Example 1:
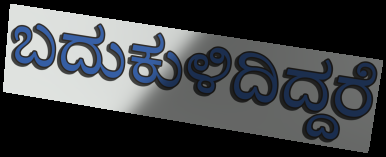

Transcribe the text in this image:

ಬದುಕುಳಿದಿದ್ದರೆ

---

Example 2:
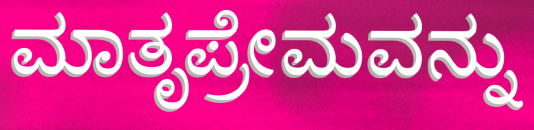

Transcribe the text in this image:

ಮಾತೃಪ್ರೇಮವನ್ನು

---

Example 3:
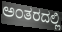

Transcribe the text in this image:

ಅಂತರದಲ್ಲಿ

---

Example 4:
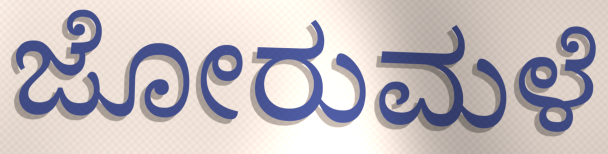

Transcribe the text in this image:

ಜೋರುಮಳೆ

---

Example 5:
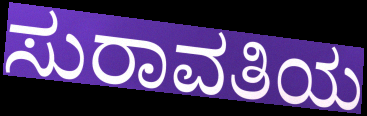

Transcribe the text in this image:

ಸುರಾವತಿಯ